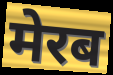
मेरब